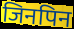
जिनपिन